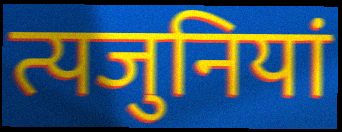
त्यजुनियां